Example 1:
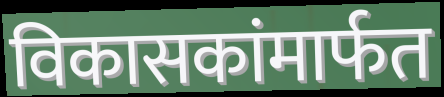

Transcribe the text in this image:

विकासकांमार्फत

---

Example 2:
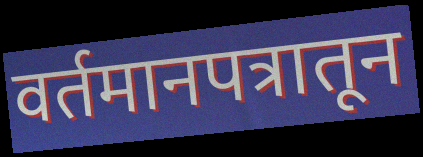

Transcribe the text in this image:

वर्तमानपत्रातून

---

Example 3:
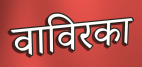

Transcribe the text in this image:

वाविरका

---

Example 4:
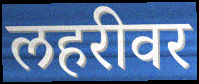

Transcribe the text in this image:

लहरीवर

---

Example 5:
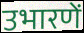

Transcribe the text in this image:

उभारणें